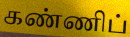
கண்ணிப்